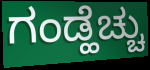
ಗಂಡ್ಹೆಚ್ಚು